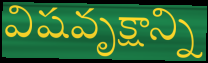
విషవృక్షాన్ని